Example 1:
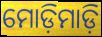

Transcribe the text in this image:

ମୋଡ଼ିମାଡ଼ି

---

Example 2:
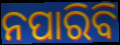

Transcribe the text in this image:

ନପାରିବି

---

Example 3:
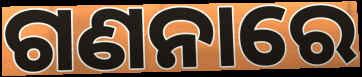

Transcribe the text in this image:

ଗଣନାରେ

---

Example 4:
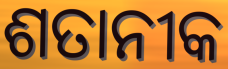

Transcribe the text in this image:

ଶତାନୀକ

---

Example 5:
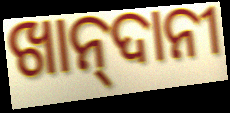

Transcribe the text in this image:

ଖାନ୍‍ଦାନୀ